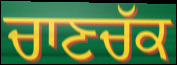
ਚਾਣਚੱਕ